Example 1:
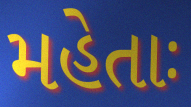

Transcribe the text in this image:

મહેતાઃ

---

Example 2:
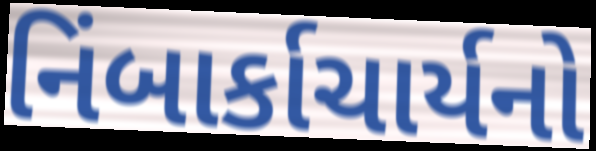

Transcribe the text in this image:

નિંબાર્કાચાર્યનો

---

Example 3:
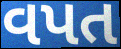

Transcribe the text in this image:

વપત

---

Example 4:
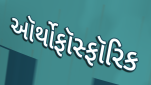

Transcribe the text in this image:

ઑર્થોફૉસ્ફૉરિક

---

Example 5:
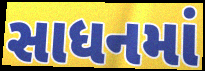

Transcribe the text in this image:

સાધનમાં